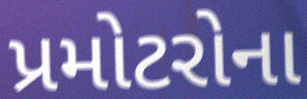
પ્રમોટરોના